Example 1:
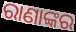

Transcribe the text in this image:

ରାଣାଙ୍କର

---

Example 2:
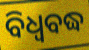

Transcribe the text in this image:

ବିଧ୍ଵବଦ୍ଧ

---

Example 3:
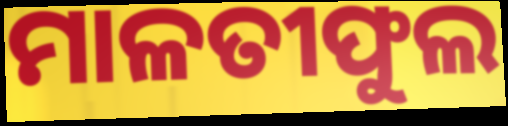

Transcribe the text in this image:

ମାଳତୀଫୁଲ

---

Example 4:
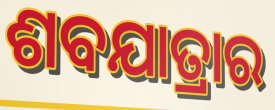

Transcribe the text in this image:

ଶବଯାତ୍ରାର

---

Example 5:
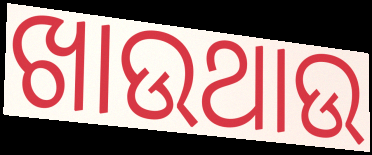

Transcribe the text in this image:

ଖାଉଥାଉ